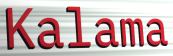
Kalama